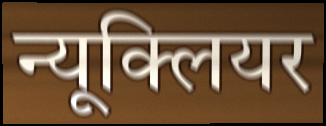
न्‍यूक्‍लियर